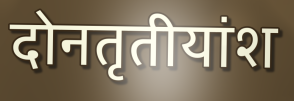
दोनतृतीयांश